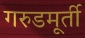
गरुडमूर्ती